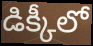
డిక్కీలో